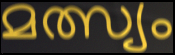
മത്സ്യം